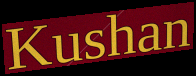
Kushan